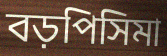
বড়পিসিমা